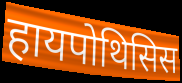
हायपोथिसिस